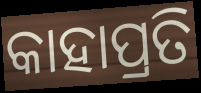
କାହାପ୍ରତି